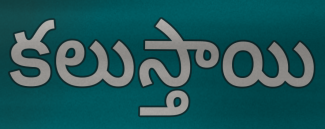
కలుస్తాయి